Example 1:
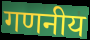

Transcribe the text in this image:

गणनीय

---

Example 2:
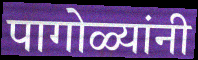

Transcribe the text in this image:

पागोळ्यांनी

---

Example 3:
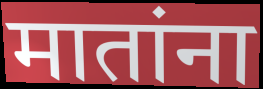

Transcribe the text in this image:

मातांना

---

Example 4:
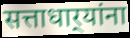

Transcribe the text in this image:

सत्ताधार्यांना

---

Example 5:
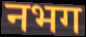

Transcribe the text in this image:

नभग